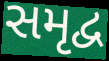
સમૃદ્વ